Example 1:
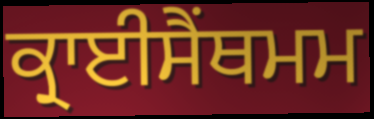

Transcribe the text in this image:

ਕ੍ਰਾਈਸੈਂਥਮਮ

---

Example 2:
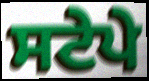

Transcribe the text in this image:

ਸਟੇਪੇ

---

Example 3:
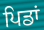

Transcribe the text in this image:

ਪਿਡਾਂ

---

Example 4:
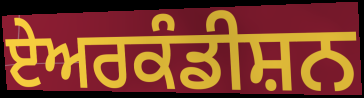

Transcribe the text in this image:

ਏਅਰਕੰਡੀਸ਼ਨ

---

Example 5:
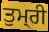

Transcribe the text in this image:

ਤੁਮ੍‍ਰੀ